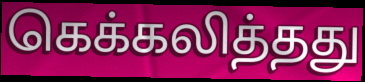
கெக்கலித்தது